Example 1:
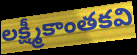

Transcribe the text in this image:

లక్ష్మీకాంతకవి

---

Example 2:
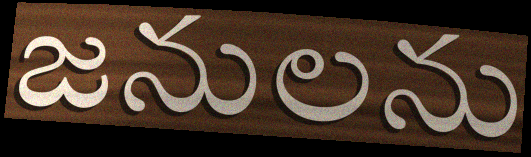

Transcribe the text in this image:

జనులను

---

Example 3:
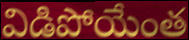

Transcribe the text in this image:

విడిపోయేంత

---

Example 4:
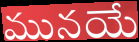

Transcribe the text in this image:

మునయే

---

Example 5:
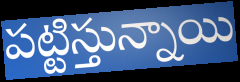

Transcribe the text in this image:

పట్టిస్తున్నాయి